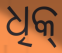
ଧିକ୍